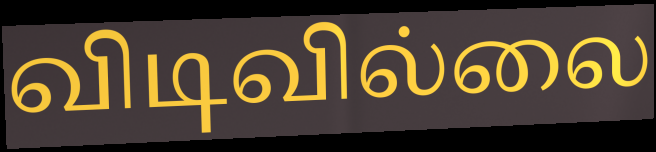
விடிவில்லை